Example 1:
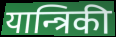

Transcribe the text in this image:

यान्त्रिकी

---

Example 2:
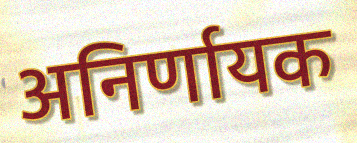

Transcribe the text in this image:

अनिर्णायक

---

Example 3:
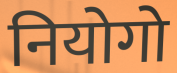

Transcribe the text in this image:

नियोगो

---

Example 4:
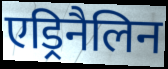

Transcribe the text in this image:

एड्रिनैलिन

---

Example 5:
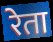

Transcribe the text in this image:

रेता